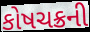
કોષચક્રની